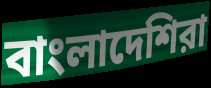
বাংলাদেশিরা